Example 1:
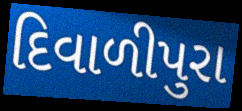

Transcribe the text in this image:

દિવાળીપુરા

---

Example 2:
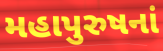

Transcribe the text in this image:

મહાપુરુષનાં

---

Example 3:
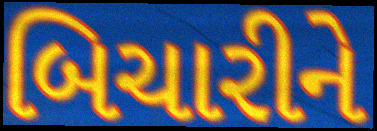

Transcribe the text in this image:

બિચારીને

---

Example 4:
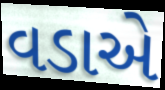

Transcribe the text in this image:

વડાએ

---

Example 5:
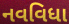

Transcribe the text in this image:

નવવિધા